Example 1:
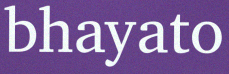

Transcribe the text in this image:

bhayato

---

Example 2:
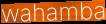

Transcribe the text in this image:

wahamba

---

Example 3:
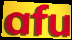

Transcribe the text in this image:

afu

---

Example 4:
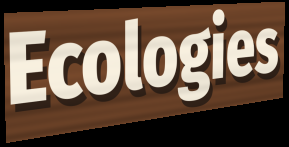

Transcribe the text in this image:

Ecologies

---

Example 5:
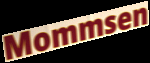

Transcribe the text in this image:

Mommsen